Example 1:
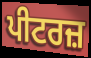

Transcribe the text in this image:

ਪੀਟਰਜ਼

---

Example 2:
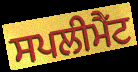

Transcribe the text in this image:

ਸਪਲੀਮੈਂਟ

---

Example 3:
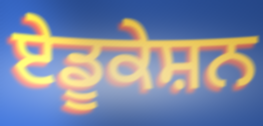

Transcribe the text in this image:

ਏਡੂਕੇਸ਼ਨ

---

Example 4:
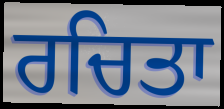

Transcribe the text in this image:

ਰਚਿਤਾ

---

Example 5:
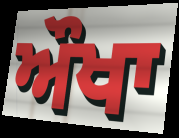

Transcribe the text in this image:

ਔਖਾ